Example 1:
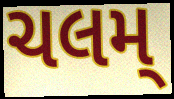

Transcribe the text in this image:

ચલમ્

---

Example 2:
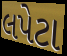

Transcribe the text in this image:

લપેટા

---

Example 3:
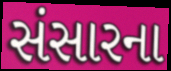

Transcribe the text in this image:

સંસારના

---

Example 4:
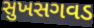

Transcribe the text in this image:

સુખસગવડ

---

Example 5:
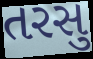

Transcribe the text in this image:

તરસુ